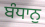
ਬੰਧਾਨੁ